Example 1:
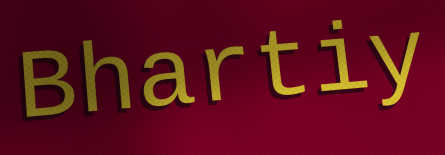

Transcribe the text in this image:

Bhartiy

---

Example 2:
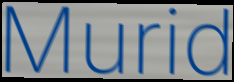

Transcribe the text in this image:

Murid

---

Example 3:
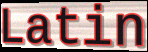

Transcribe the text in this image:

Latin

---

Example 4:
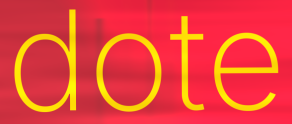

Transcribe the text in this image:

dote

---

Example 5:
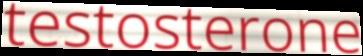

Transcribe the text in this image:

testosterone